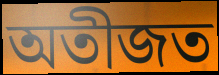
অতীজত